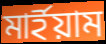
মার্ইয়াম